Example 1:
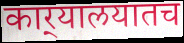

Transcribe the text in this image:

कार्यालयातच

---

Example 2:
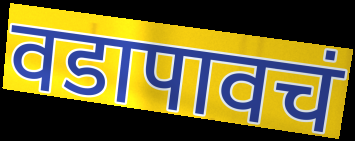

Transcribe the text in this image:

वडापावचं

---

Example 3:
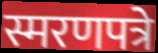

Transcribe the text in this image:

स्मरणपत्रे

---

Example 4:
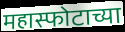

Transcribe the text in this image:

महास्फोटाच्या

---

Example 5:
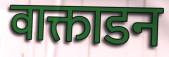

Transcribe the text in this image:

वाक्ताडन